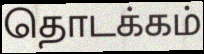
தொடக்கம்